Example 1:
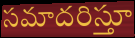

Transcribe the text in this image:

సమాదరిస్తూ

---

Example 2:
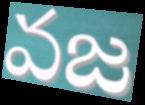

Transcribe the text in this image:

వజ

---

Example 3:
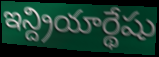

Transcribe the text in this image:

ఇన్ద్రియార్థేషు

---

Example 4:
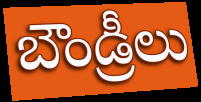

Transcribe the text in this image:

బౌండ్రీలు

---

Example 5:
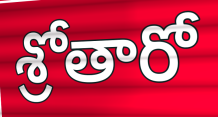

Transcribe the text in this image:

శ్రోతారో